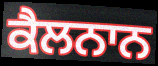
ਕੈਲਨਾਨ